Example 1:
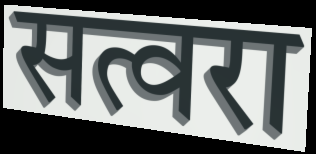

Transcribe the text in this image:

सत्वरा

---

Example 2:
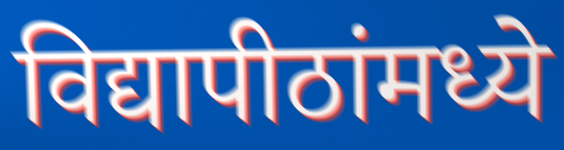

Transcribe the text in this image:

विद्यापीठांमध्ये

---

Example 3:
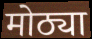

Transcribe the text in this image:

मोठ्या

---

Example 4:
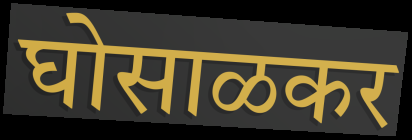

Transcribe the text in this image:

घोसाळकर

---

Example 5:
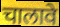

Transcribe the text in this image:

चालावे